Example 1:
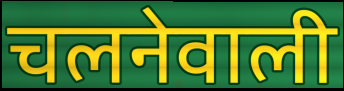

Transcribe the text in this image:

चलनेवाली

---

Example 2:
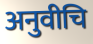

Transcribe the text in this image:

अनुवीचि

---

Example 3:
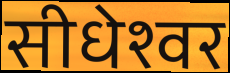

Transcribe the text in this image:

सीधेश्वर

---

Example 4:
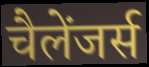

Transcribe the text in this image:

चैलेंजर्स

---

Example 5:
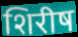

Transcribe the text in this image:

शिरीष